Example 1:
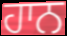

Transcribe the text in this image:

ਹਾਨ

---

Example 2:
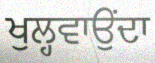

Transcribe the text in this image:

ਖੁਲ੍ਹਵਾਉਂਦਾ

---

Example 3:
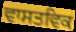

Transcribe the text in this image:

ਵਾਸਤਵਿਕ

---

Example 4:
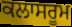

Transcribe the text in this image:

ਕਲਾਸਰੂਮ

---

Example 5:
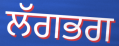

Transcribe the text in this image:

ਲੱਗਭਗ